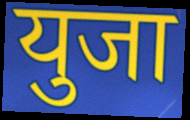
युजा